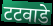
टटवाडे